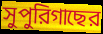
সুপুরিগাছের